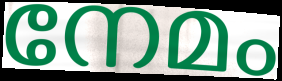
നേമം